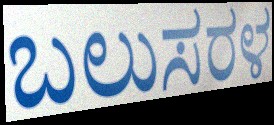
ಬಲುಸರಳ